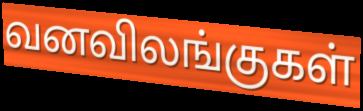
வனவிலங்குகள்